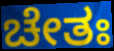
ಚೇತಃ